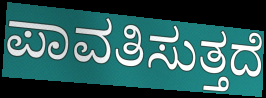
ಪಾವತಿಸುತ್ತದೆ